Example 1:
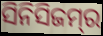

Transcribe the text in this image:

ସିନିସିଜମ୍‌ର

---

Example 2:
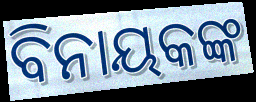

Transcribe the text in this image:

ବିନାୟକଙ୍କ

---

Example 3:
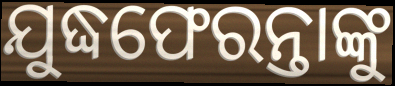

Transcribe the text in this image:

ଯୁଦ୍ଧଫେରନ୍ତାଙ୍କୁ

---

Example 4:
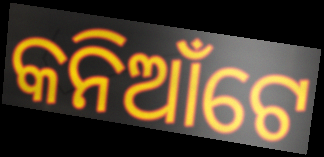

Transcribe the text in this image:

କନିଆଁଟେ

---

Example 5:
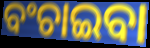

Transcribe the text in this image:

ବଂଚାଇବା